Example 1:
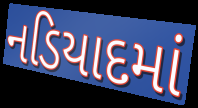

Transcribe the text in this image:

નડિયાદમાં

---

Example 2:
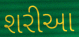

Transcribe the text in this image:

શરીઆ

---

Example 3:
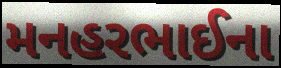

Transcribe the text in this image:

મનહરભાઈના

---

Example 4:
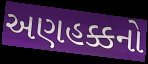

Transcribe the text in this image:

અણહક્કનો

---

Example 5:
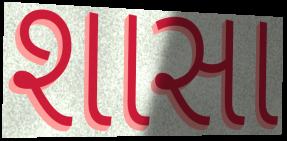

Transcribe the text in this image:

શાસા